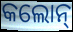
କଲୋନ୍